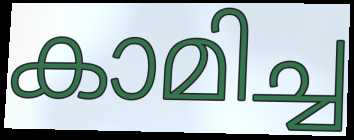
കാമിച്ച